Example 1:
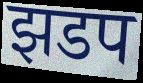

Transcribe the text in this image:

झडप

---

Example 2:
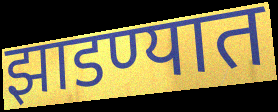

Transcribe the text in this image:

झाडण्यात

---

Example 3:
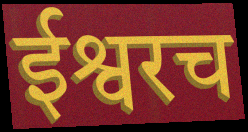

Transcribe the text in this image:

ईश्वरच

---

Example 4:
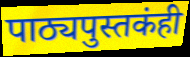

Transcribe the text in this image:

पाठ्यपुस्तकंही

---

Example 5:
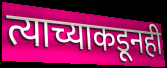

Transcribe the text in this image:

त्याच्याकडूनही